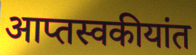
आप्तस्वकीयांत